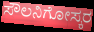
ಸೌಲನಿಗೋಸ್ಕರ